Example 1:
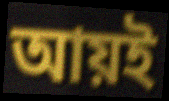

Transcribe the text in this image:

আয়ই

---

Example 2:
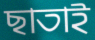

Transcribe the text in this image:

ছাতাই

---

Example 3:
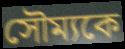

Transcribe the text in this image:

সৌম্যকে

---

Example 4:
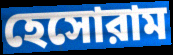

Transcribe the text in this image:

হেসোরাম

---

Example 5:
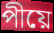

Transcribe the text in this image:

পীয়ে